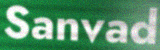
Sanvad